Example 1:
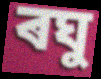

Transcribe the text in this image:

ৰঘু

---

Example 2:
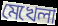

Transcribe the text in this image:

মেখেলা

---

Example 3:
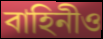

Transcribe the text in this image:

বাহিনীও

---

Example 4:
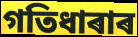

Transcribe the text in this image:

গতিধাৰাৰ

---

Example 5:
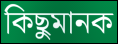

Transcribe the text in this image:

কিছুমানক